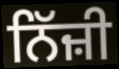
ਨਿੱਜ਼ੀ